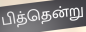
பித்தென்று